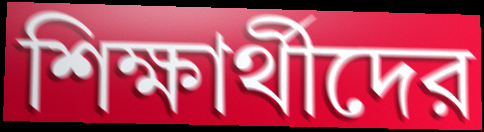
শিক্ষার্থীদের